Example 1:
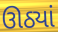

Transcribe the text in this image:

ઊઠ્યાં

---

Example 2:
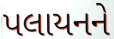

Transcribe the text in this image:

પલાયનને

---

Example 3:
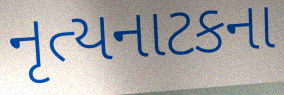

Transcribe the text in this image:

નૃત્યનાટકના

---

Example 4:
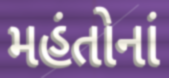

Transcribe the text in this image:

મહંતોનાં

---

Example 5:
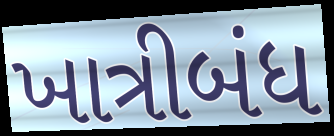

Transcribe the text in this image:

ખાત્રીબંધ